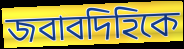
জবাবদিহিকে